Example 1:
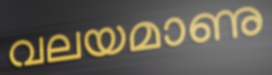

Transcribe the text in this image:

വലയമാണു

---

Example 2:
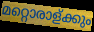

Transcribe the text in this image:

മറ്റൊരാള്ക്കും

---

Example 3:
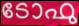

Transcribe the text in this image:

ടോഫു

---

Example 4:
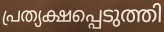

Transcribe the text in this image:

പ്രത്യക്ഷപ്പെടുത്തി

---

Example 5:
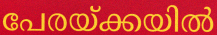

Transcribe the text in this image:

പേരയ്ക്കയിൽ